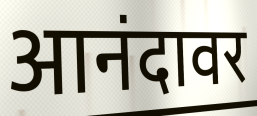
आनंदावर